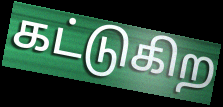
கட்டுகிற